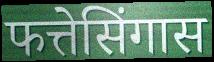
फत्तेसिंगास